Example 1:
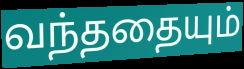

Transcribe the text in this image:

வந்ததையும்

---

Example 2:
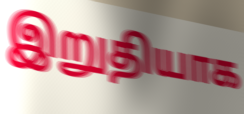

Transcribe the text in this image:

இறுதியாக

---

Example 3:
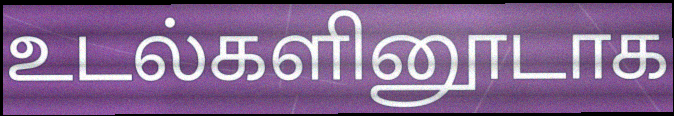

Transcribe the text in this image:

உடல்களினூடாக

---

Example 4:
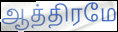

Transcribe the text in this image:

ஆத்திரமே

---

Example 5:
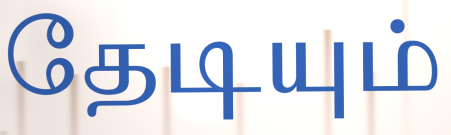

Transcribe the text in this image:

தேடியும்